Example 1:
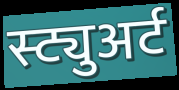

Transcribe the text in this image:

स्ट्युअर्ट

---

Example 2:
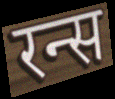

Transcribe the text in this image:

रन्स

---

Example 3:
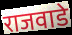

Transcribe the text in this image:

राजवाडे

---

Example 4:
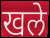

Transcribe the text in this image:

खले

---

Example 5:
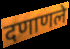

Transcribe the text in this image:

दणाणले